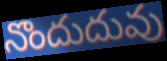
నొందుదువు